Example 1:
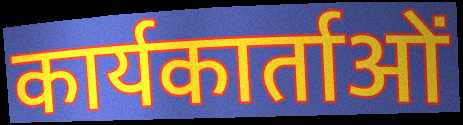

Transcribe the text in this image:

कार्यकार्ताओं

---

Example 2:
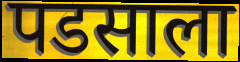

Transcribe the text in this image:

पडसाला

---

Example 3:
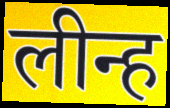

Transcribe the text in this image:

लीन्ह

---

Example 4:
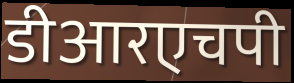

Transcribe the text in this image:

डीआरएचपी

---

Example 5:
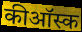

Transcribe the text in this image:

कीऑस्क